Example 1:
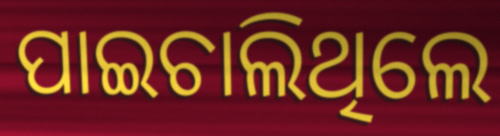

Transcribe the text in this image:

ପାଇଚାଲିଥିଲେ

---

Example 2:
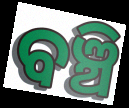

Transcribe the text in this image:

ବଞ୍ଚି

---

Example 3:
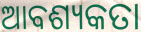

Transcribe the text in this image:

ଆବଶ୍ୟକତା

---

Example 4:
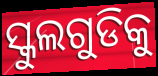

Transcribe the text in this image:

ସ୍କୁଲଗୁଡିକୁ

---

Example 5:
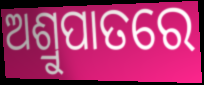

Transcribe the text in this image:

ଅଶ୍ରୁପାତରେ